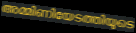
അമ്മിണിയേടത്തിയുടെ